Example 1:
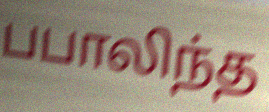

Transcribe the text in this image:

பபாலிந்த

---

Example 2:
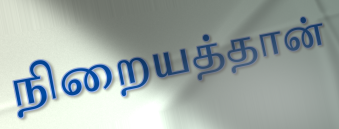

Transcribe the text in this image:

நிறையத்தான்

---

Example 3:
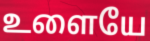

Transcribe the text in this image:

உளையே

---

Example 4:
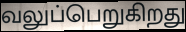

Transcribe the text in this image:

வலுப்பெறுகிறது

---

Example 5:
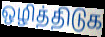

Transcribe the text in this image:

ஒழித்திடுக